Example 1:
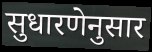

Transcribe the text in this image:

सुधारणेनुसार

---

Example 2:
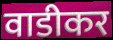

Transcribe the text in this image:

वाडीकर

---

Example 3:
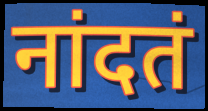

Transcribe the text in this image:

नांदतं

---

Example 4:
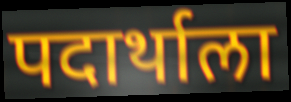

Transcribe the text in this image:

पदार्थाला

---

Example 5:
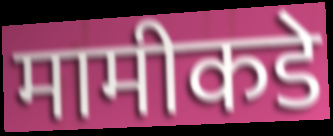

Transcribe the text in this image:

मामीकडे